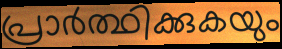
പ്രാർത്ഥിക്കുകയും